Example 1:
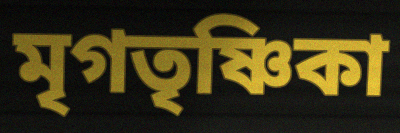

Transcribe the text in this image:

মৃগতৃষ্ণিকা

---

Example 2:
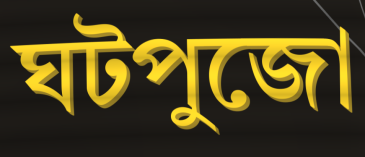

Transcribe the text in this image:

ঘটপুজো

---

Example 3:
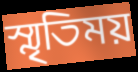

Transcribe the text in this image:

স্মৃতিময়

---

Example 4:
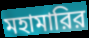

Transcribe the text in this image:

মহামারির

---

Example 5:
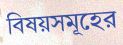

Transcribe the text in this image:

বিষয়সমূহের